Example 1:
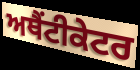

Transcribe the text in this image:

ਅਥੈਂਟੀਕੇਟਰ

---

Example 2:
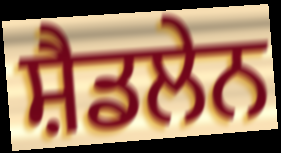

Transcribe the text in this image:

ਸ਼ੈਡਲੇਨ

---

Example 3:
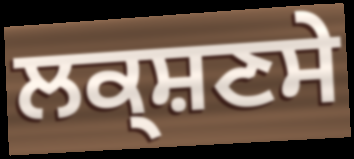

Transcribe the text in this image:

ਲਕ੍ਸ਼ਣਸੇ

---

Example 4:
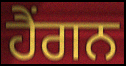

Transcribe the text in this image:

ਹੈਂਗਨ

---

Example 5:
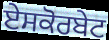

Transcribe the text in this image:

ਏਸਕੋਰਬੇਟ